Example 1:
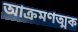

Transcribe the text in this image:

আক্রমণত্মক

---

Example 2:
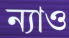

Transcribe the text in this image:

ন্যাও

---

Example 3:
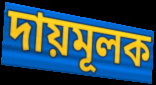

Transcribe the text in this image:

দায়মূলক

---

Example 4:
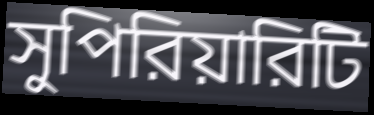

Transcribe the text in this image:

সুপিরিয়ারিটি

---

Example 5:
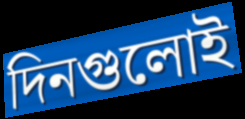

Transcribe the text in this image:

দিনগুলোই